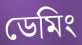
ডেমিং